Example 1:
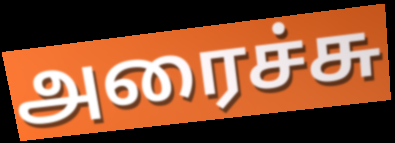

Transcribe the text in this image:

அரைச்சு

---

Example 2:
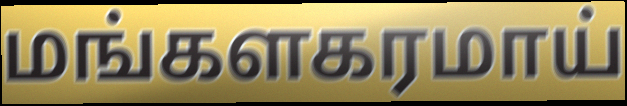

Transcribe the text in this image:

மங்களகரமாய்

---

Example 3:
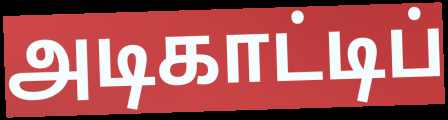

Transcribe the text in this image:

அடிகாட்டிப்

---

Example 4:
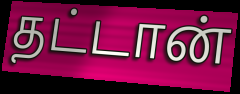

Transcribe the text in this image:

தட்டான்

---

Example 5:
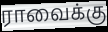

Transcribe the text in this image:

ராவைக்கு